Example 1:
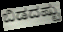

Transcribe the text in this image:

ಬಿಡದಷ್ಟು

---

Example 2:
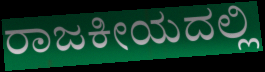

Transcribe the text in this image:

ರಾಜಕೀಯದಲ್ಲಿ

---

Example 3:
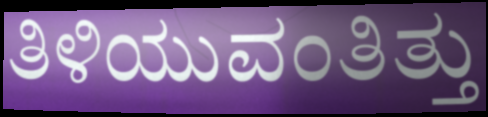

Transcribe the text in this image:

ತಿಳಿಯುವಂತಿತ್ತು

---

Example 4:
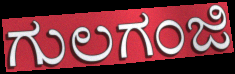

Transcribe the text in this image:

ಗುಲಗಂಜಿ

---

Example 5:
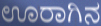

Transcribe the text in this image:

ಊರಾಗಿನ